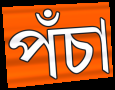
পঁচা